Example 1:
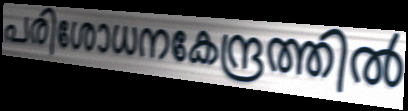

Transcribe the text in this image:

പരിശോധനകേന്ദ്രത്തിൽ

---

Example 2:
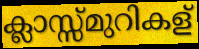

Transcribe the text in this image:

ക്ലാസ്സ്മുറികള്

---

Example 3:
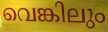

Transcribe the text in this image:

വെങ്കിലും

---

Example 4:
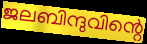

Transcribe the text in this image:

ജലബിന്ദുവിന്റെ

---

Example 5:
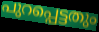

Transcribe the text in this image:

പുറപ്പെട്ടതും